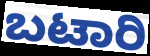
ಬಟಾರಿ